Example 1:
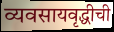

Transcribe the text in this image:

व्यवसायवृद्धीची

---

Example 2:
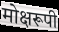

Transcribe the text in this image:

मोक्षरूपी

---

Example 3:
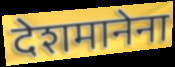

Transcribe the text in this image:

देशमानेना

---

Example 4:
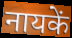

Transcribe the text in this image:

नायकें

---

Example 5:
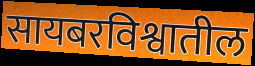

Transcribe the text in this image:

सायबरविश्वातील